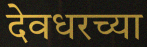
देवधरच्या